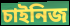
চাইনিজ